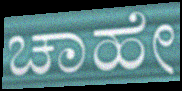
ಚಾಹೇ